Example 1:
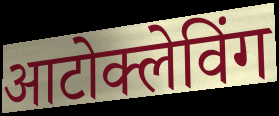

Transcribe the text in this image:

आटोक्लेविंग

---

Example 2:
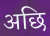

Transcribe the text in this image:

अछि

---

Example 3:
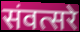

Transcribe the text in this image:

संवत्सरे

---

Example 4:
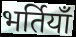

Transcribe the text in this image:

भर्तियाँ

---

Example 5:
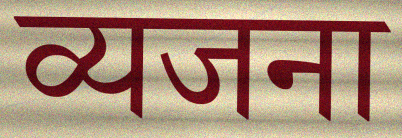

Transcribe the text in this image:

व्यजना